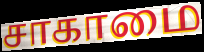
சாகாமை